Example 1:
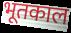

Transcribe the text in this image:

भूतकाल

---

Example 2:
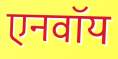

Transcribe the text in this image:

एनवॉय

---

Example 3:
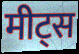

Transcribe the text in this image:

मीट्स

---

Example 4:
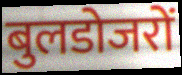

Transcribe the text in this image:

बुलडोजरों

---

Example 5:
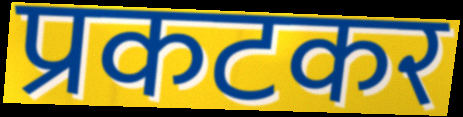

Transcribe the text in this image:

प्रकटकर